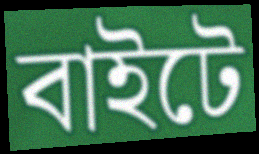
বাইটে